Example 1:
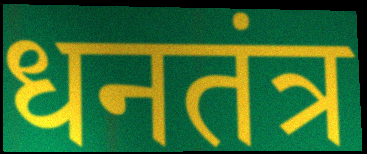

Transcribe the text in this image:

धनतंत्र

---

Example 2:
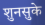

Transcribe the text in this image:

शुनसुके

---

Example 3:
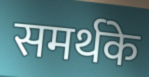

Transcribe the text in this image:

समर्थके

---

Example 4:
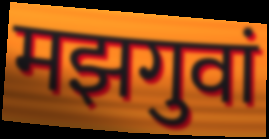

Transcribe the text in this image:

मझगुवां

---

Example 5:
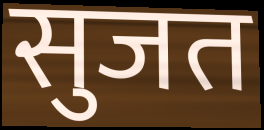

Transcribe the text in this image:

सुजत